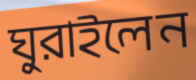
ঘুরাইলেন